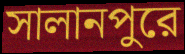
সালানপুরে